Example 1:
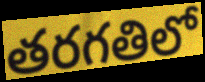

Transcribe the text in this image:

తరగతిలో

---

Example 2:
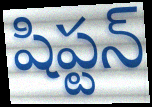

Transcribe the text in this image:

షిప్టన్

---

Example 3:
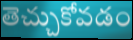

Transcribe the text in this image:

తెచ్చుకోవడం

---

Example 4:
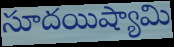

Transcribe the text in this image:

సూదయిష్యామి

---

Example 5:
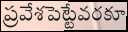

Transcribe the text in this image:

ప్రవేశపెట్టేవరకూ